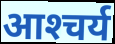
आश्‍चर्य